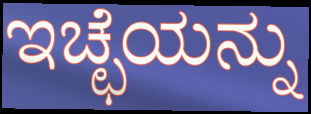
ಇಚ್ಛೆಯನ್ನು